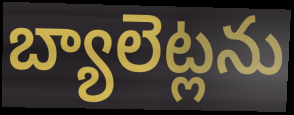
బ్యాలెట్లను